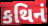
કથિનં